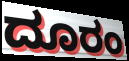
ದೂರಂ